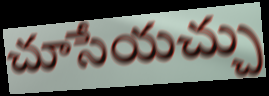
చూసేయచ్చు